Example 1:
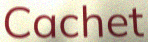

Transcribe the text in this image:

Cachet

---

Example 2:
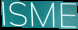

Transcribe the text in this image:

ISME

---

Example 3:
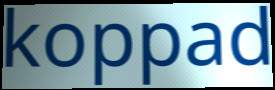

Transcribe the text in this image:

koppad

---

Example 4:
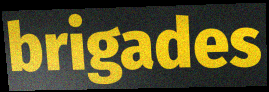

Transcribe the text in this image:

brigades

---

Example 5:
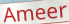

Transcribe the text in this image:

Ameer